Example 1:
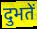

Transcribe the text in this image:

दुभतें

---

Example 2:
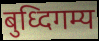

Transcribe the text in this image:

बुध्दिगम्य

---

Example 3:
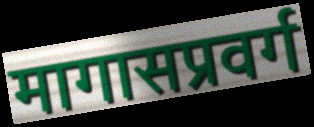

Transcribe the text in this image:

मागासप्रवर्ग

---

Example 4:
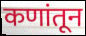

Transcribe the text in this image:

कणांतून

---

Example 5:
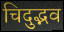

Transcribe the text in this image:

चिदुद्भव